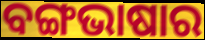
ବଙ୍ଗଭାଷାର